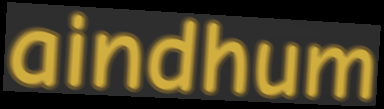
aindhum